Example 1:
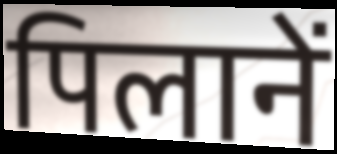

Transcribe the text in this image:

पिलानें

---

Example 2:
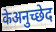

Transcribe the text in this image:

केअनुच्छेद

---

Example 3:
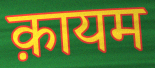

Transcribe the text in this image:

क़ायम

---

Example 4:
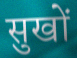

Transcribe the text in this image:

सुखों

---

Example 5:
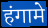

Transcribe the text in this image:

हंगामे